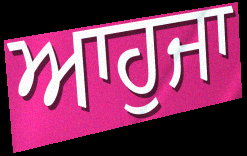
ਆਹੁਜਾ